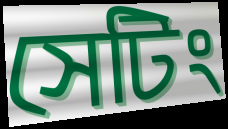
সেটিং